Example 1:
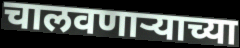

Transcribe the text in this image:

चालवणार्‍याच्या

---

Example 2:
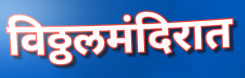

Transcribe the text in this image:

विठ्ठलमंदिरात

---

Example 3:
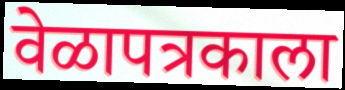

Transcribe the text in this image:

वेळापत्रकाला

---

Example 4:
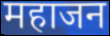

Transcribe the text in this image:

महाजन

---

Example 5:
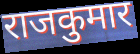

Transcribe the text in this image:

राजकुमार